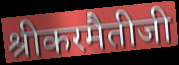
श्रीकरमैतीजी